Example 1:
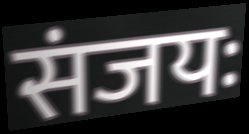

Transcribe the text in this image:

संजयः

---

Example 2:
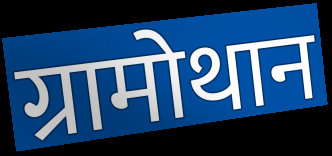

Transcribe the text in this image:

ग्रामोथान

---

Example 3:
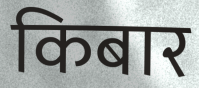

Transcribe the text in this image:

किबार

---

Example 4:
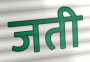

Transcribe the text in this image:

जती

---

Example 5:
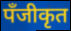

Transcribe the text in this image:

पँजीकृत